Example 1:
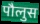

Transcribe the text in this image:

पौलुस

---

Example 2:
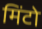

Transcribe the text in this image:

मिंटो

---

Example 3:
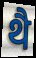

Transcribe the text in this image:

थै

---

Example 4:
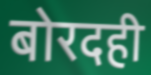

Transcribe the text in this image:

बोरदही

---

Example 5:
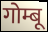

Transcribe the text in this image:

गोम्बू